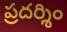
ప్రదర్శిం